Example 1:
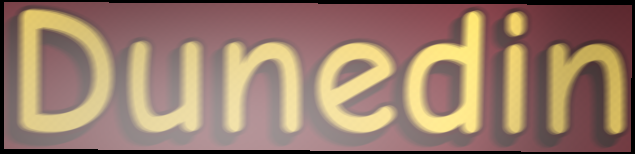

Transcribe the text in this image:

Dunedin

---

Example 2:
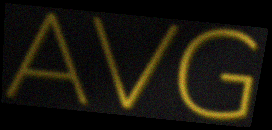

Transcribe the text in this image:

AVG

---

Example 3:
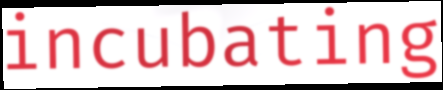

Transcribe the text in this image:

incubating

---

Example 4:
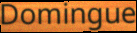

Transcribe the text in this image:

Domingue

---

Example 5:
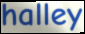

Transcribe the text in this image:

halley